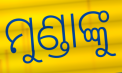
ମୁଣ୍ଡାଙ୍କୁ